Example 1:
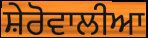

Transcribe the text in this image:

ਸ਼ੇਰੋਵਾਲੀਆ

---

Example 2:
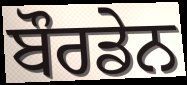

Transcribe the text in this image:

ਬੌਰਡੇਨ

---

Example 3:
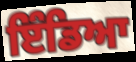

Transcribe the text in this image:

ਇੰਡਿਆ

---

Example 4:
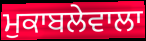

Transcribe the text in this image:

ਮੁਕਾਬਲੇਵਾਲਾ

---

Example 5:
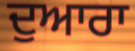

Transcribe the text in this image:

ਦੁਆਰਾ